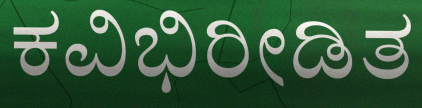
ಕವಿಭಿರೀಡಿತ